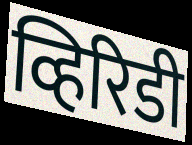
व्हिरिडी